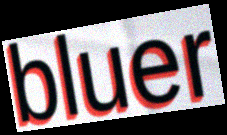
bluer